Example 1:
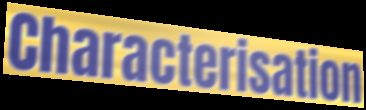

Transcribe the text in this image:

Characterisation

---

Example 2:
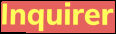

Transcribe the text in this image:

Inquirer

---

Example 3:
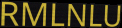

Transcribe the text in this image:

RMLNLU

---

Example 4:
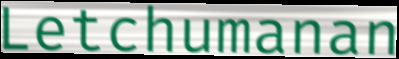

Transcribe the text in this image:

Letchumanan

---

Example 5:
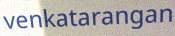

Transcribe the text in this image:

venkatarangan